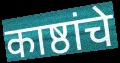
काष्ठांचे